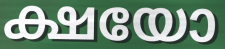
ക്ഷയോ